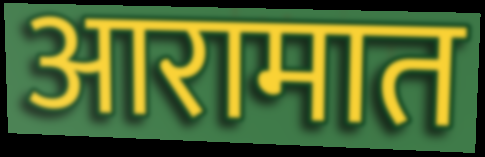
आरामात